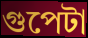
গুপেটা